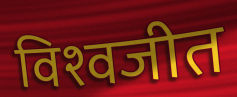
विश्वजीत